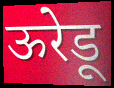
ऊरेडू